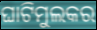
ଘାଟିମୁଲକର